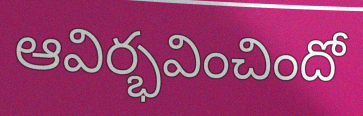
ఆవిర్భవించిందో